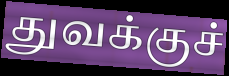
துவக்குச்